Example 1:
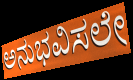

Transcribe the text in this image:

ಅನುಭವಿಸಲೇ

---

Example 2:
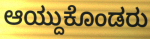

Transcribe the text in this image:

ಆಯ್ದುಕೊಂಡರು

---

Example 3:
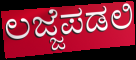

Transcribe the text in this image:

ಲಜ್ಜೆಪಡಲಿ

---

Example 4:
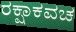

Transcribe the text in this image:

ರಕ್ಷಾಕವಚ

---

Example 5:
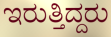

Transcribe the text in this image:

ಇರುತ್ತಿದ್ದರು